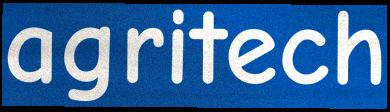
agritech